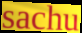
sachu